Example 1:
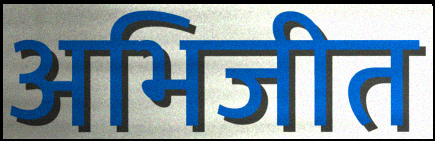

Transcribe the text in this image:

अभिजीत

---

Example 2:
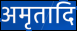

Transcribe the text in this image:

अमृतादि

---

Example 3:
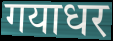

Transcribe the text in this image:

गयाधर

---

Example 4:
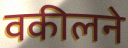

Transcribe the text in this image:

वकीलने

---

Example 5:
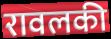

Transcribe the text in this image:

रावलकी